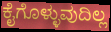
ಕೈಗೊಳ್ಳುವುದಿಲ್ಲ